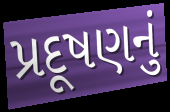
પ્રદૂષણનું